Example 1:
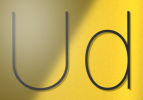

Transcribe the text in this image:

Ud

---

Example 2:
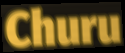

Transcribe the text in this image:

Churu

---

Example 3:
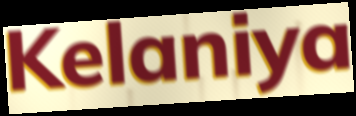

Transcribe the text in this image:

Kelaniya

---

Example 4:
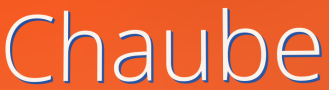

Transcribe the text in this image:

Chaube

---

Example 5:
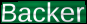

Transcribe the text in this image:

Backer